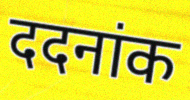
ददनांक